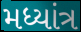
મધ્યાંત્ર